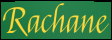
Rachane